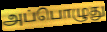
அப்பொழுது